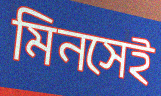
মিনসেই